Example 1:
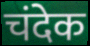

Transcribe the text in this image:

चंदेक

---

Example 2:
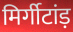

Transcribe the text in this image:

मिर्गीटांड़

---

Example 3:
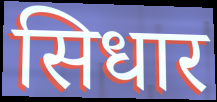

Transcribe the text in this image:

सिधार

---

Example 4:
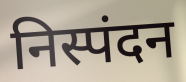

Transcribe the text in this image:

निस्पंदन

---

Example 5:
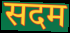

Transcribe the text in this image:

सदम